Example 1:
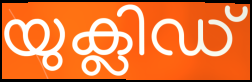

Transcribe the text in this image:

യുക്ലിഡ്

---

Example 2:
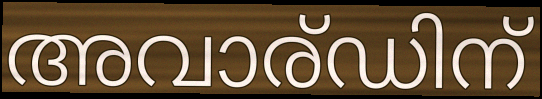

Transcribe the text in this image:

അവാര്ഡിന്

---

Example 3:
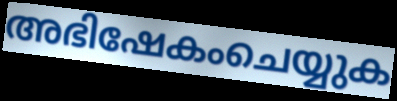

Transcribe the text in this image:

അഭിഷേകംചെയ്യുക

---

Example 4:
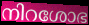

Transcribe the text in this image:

നിറശോഭ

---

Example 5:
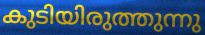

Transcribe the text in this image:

കുടിയിരുത്തുന്നു